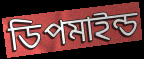
ডিপমাইন্ড